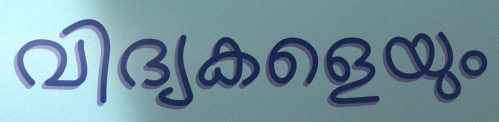
വിദ്യകളെയും